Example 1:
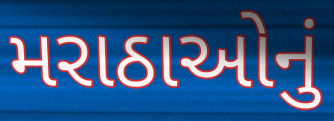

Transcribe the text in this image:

મરાઠાઓનું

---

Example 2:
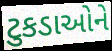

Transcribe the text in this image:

ટુકડાઓને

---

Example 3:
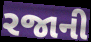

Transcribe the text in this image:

રજાની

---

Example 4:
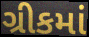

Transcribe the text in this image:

ગ્રીકમાં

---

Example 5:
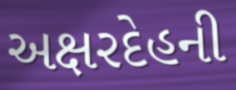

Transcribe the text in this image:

અક્ષરદેહની